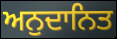
ਅਨੁਦਾਨਿਤ